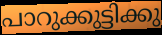
പാറുക്കുട്ടിക്കു